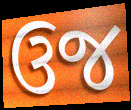
ઉજ